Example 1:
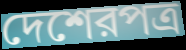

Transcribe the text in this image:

দেশেরপত্র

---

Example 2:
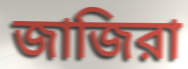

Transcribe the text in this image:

জাজিরা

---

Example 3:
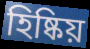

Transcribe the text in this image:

হিষ্কিয়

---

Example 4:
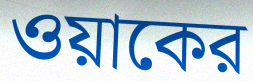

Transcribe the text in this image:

ওয়াকের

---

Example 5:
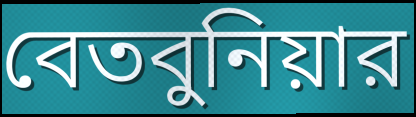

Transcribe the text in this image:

বেতবুনিয়ার